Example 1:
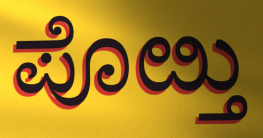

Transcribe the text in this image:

ಪೊೞ್ತು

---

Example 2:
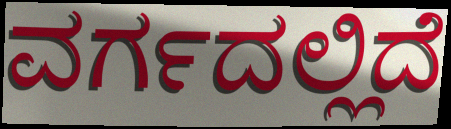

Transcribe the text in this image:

ವರ್ಗದಲ್ಲಿದೆ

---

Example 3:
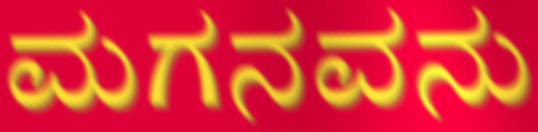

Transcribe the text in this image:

ಮಗನವನು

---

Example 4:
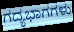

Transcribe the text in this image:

ಗದ್ಯಭಾಗಗಳು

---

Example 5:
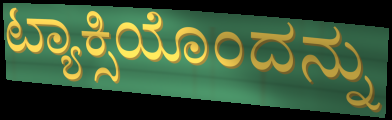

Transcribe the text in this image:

ಟ್ಯಾಕ್ಸಿಯೊಂದನ್ನು